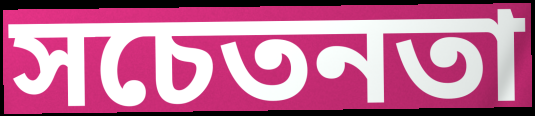
সচেতনতা